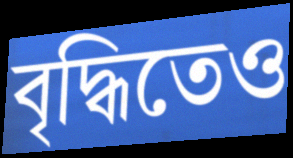
বৃদ্ধিতেও